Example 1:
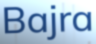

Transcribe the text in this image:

Bajra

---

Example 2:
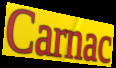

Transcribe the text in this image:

Carnac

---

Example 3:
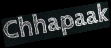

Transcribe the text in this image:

Chhapaak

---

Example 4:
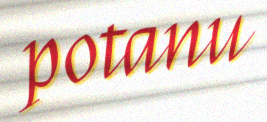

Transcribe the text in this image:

potanu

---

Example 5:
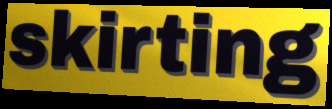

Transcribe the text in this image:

skirting